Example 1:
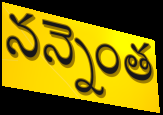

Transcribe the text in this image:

నన్నెంత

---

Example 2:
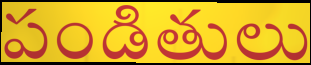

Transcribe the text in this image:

పండితులు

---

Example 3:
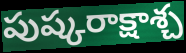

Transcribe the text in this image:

పుష్కరాక్షాశ్చ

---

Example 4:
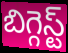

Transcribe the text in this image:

బిగ్గెస్ట్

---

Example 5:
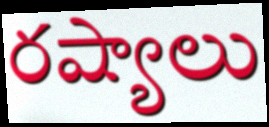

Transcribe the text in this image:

రష్యాలు